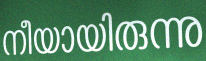
നീയായിരുന്നു